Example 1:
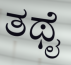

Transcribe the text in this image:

ತಥೈ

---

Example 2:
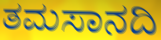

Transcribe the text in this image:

ತಮಸಾನದಿ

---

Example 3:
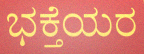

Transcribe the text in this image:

ಭಕ್ತೆಯರ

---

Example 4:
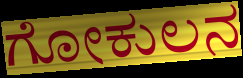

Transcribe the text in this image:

ಗೋಕುಲನ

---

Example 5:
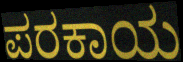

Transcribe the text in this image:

ಪರಕಾಯ